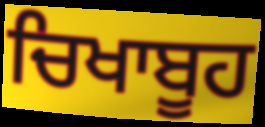
ਚਿਖਾਬੂਹ